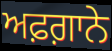
ਅਫ਼ਗ਼ਾਨੇ